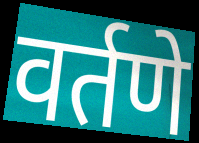
वर्तणे